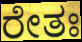
ರೇತಃ